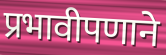
प्रभावीपणाने